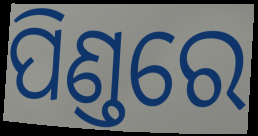
ପିଣ୍ଡରେ